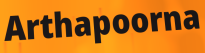
Arthapoorna